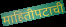
माहितीपटाची